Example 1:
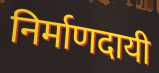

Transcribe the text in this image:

निर्माणदायी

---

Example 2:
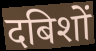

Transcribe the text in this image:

दबिशों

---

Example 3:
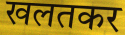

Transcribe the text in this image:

खलतकर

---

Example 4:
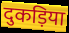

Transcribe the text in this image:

दुकड़िया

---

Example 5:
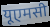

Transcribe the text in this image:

यूएमसी